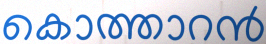
കൊത്താറൻ